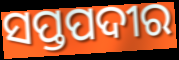
ସପ୍ତପଦୀର